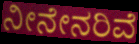
ನೀನೇನರಿವೆ